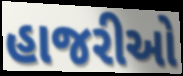
હાજરીઓ